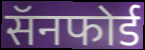
सॅनफोर्ड